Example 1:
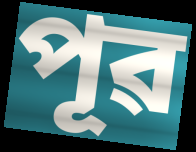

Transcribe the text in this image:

পূৱ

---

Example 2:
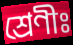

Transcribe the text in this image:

শ্ৰেণীঃ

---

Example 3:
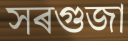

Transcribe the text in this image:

সৰগুজা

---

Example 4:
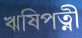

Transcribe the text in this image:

ঋষিপত্নী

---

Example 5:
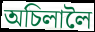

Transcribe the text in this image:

অচিলালৈ